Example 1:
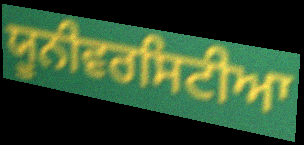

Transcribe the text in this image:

ਯੂਨੀਵਰਸਿਟੀਆ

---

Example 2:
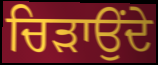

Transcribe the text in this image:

ਚਿੜਾਉਂਦੇ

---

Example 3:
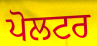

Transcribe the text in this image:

ਪੋਲਟਰ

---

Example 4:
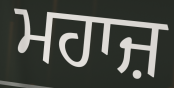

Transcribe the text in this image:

ਮਹਾਜ਼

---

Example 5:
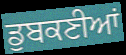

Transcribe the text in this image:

ਡੁਬਕਣੀਆਂ